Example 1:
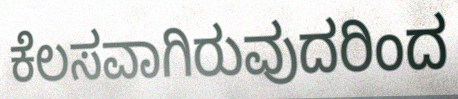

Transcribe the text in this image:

ಕೆಲಸವಾಗಿರುವುದರಿಂದ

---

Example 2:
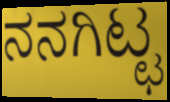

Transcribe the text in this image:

ನನಗಿಟ್ಟ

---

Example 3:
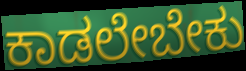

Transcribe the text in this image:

ಕಾಡಲೇಬೇಕು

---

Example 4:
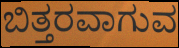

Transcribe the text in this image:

ಬಿತ್ತರವಾಗುವ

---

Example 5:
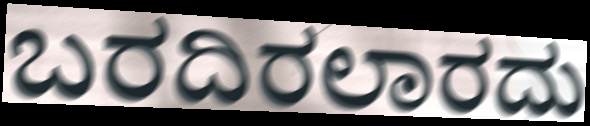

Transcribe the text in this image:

ಬರದಿರಲಾರದು